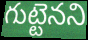
గుట్టెనని